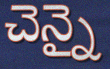
చెన్నై